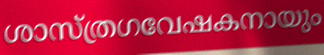
ശാസ്ത്രഗവേഷകനായും